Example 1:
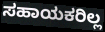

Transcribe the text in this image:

ಸಹಾಯಕರಿಲ್ಲ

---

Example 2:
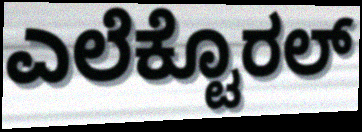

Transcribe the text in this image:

ಎಲೆಕ್ಟೊರಲ್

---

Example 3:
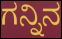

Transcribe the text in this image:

ಗನ್ನಿನ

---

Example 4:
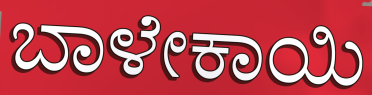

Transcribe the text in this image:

ಬಾಳೇಕಾಯಿ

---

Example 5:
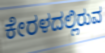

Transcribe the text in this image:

ಕೇರಳದಲ್ಲಿರುವ